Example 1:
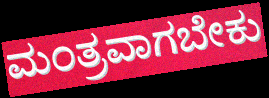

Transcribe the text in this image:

ಮಂತ್ರವಾಗಬೇಕು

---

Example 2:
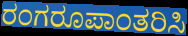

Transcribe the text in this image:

ರಂಗರೂಪಾಂತರಿಸಿ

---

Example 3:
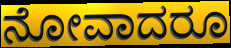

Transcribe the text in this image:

ನೋವಾದರೂ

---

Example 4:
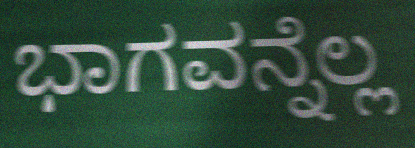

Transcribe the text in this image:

ಭಾಗವನ್ನೆಲ್ಲ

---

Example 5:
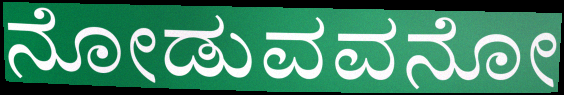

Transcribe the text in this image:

ನೋಡುವವನೋ